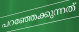
പറഞ്ഞേക്കുന്നത്